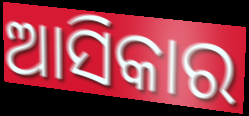
ଆସିକାର